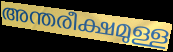
അന്തരീക്ഷമുള്ള